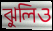
ঝুলিও